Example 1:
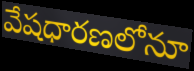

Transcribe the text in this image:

వేషధారణలోనూ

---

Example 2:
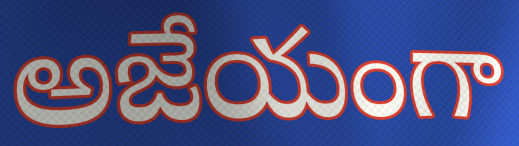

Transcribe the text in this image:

అజేయంగా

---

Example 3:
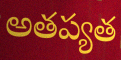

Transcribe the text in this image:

అతప్యత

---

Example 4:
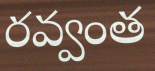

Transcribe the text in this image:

రవ్వంత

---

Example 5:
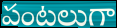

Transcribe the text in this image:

పంటలుగా